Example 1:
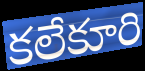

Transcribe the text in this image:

కలేకూరి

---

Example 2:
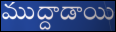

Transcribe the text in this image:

ముద్దాడాయి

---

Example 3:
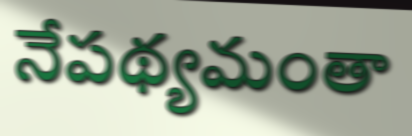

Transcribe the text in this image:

నేపథ్యమంతా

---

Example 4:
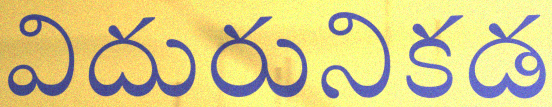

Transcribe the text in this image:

విదురునికడ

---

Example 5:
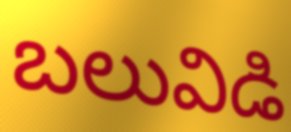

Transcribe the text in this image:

బలువిడి